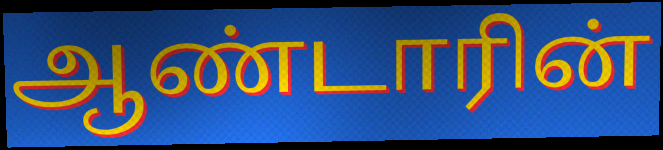
ஆண்டாரின்